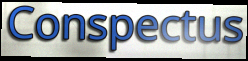
Conspectus